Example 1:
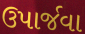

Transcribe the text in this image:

ઉપાર્જવા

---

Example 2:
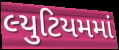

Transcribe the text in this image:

લ્યુટિયમમાં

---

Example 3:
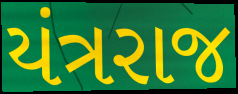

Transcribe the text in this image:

યંત્રરાજ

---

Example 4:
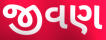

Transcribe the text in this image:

જીવણ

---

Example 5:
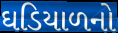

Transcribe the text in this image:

ઘડિયાળનો